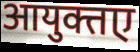
आयुक्तए